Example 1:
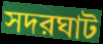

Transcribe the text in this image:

সদরঘাট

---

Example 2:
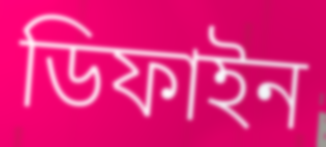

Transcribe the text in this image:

ডিফাইন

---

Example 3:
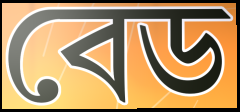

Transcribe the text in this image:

বেড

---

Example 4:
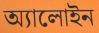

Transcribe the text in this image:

অ্যালোইন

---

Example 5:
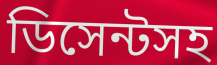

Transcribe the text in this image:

ডিসেন্টসহ